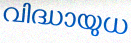
വിദ്ധായുധ